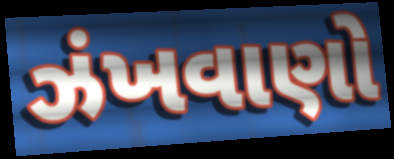
ઝંખવાણો